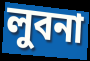
লুবনা